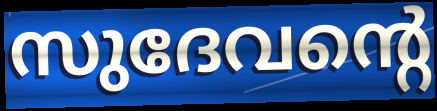
സുദേവന്റെ